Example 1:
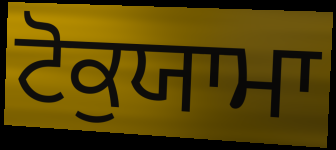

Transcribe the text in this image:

ਟੋਕੁਯਾਮਾ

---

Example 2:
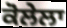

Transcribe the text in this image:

ਕੋਲੇਲਾ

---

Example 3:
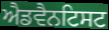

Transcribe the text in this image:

ਐਡਵੈਨਟਿਸਟ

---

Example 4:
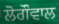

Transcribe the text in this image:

ਲੋਗੌਵਾਲ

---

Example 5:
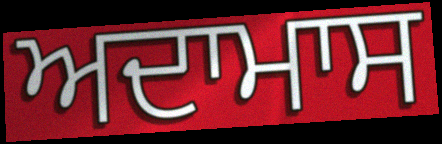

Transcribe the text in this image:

ਅਦਾਮਾਸ